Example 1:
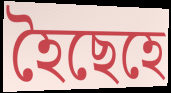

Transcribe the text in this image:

হৈছেহে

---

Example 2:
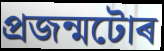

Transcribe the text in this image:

প্ৰজন্মটোৰ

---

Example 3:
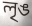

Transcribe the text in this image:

লৃঙ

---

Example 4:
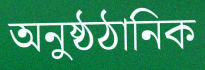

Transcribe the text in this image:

অনুষ্ঠঠানিক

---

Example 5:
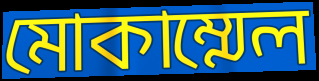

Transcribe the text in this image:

মোকাম্মেল